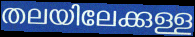
തലയിലേക്കുള്ള